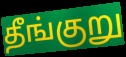
தீங்குறு